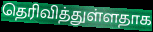
தெரிவித்துள்ளதாக